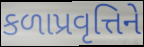
કળાપ્રવૃત્તિને